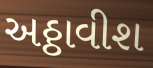
અઠ્ઠાવીશ